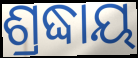
ଶ୍ରଦ୍ଧାୟ